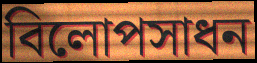
বিলোপসাধন